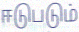
ஈடுபடும்